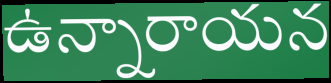
ఉన్నారాయన